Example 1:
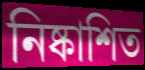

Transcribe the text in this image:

নিষ্কাশিত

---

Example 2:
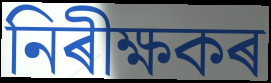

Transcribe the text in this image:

নিৰীক্ষকৰ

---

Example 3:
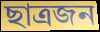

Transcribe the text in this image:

ছাত্ৰজন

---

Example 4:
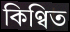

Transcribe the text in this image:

কিণ্বিত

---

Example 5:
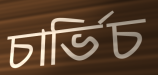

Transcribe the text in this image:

চাৰ্ভিচ